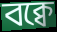
বক্বে